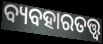
ବ୍ୟବହାରତତ୍ତ୍ବ